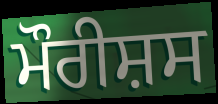
ਮੌਰੀਸ਼ਸ